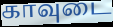
காவுடை